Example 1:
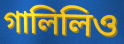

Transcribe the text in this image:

গালিলিও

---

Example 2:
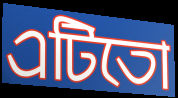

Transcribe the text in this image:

এটিতো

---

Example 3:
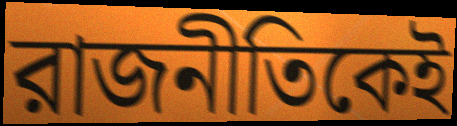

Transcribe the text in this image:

রাজনীতিকেই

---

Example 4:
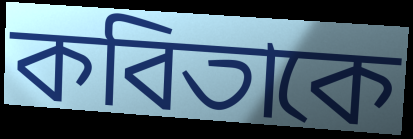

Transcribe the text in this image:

কবিতাকে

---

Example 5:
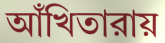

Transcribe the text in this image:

আঁখিতারায়